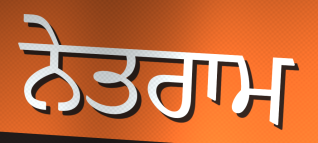
ਨੇਤਰਾਮ